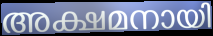
അക്ഷമനായി